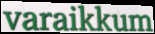
varaikkum